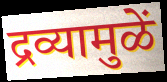
द्रव्यामुळें